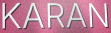
KARAN